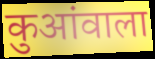
कुआंवाला